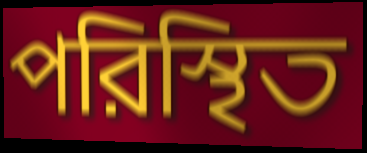
পরিস্থিত